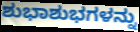
ಶುಭಾಶುಭಗಳನ್ನು